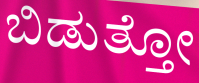
ಬಿಡುತ್ತೋ